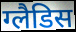
ग्लैडिस